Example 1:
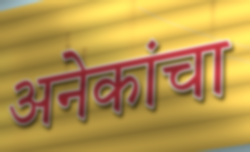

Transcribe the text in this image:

अनेकांचा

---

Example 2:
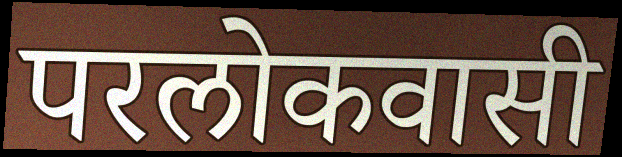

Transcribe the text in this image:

परलोकवासी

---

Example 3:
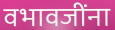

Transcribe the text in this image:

वभावजींना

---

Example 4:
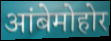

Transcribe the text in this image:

आंबेमोहोर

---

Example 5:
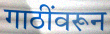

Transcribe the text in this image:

गाठींवरून